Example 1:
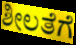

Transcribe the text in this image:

ಶೀಲತೆಗೆ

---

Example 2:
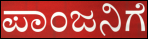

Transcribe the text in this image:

ಪಾಂಜನಿಗೆ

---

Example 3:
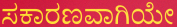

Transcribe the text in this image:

ಸಕಾರಣವಾಗಿಯೇ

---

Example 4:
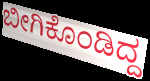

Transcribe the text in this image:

ಬೀಗಿಕೊಂಡಿದ್ದ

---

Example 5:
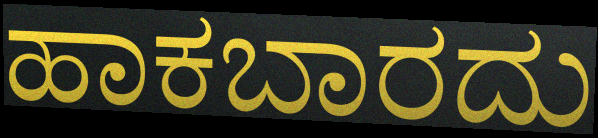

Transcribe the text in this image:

ಹಾಕಬಾರದು